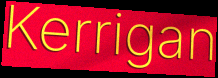
Kerrigan